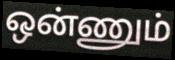
ஒன்ணும்